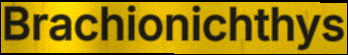
Brachionichthys